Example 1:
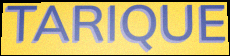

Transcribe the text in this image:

TARIQUE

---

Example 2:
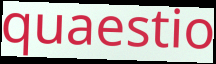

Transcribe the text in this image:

quaestio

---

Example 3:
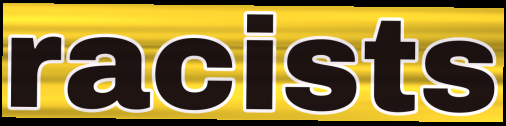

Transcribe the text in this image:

racists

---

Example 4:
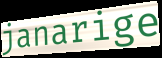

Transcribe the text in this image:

janarige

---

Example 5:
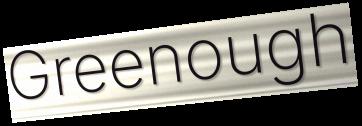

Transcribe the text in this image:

Greenough